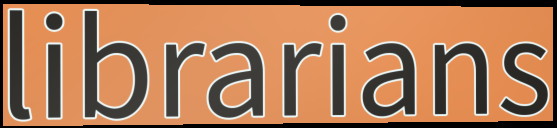
librarians